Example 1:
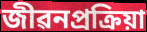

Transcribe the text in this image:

জীৱনপ্ৰক্ৰিয়া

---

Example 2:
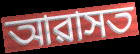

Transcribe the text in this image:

আৱাসত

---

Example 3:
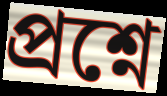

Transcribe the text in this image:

প্ৰশ্নে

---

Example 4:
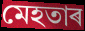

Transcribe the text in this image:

মেহতাৰ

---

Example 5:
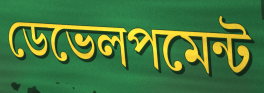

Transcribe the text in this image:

ডেভেলপমেন্ট